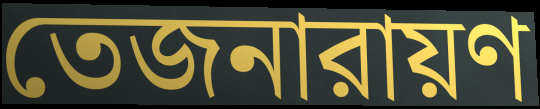
তেজনারায়ণ